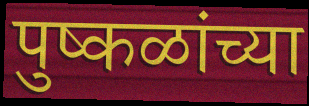
पुष्कळांच्या